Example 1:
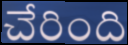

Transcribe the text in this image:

చేరింది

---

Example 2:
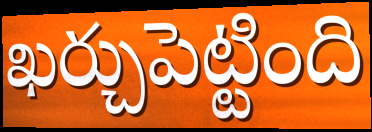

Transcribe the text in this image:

ఖర్చుపెట్టింది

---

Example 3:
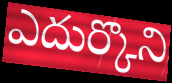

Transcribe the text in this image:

ఎదుర్కొని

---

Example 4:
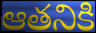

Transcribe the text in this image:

ఆతనికి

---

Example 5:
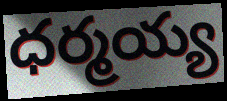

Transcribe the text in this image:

ధర్మయ్య